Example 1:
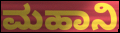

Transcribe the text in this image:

ಮಹಾನಿ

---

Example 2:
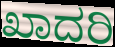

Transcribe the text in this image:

ಖಾದರಿ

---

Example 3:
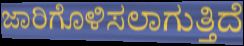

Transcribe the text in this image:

ಜಾರಿಗೊಳಿಸಲಾಗುತ್ತಿದೆ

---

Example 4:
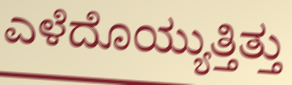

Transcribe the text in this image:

ಎಳೆದೊಯ್ಯುತ್ತಿತ್ತು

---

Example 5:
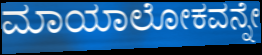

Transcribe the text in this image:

ಮಾಯಾಲೋಕವನ್ನೇ